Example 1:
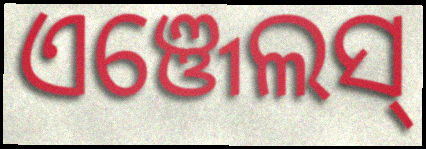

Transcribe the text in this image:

ଏଞ୍ଜେଲସ୍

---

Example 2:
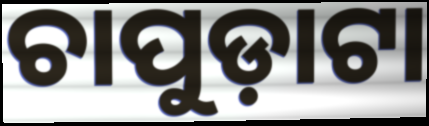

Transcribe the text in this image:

ଚାପୁଡ଼ାଟା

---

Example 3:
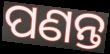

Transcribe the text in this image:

ପଣନ୍ତ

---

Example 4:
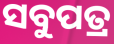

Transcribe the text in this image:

ସବୁପତ୍ର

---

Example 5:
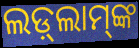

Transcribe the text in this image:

ଲଡ଼୍‍ଲାମ୍‍ଙ୍କ